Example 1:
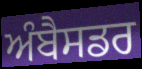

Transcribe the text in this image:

ਅੰਬੈਸਡਰ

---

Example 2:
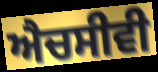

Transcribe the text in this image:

ਐਚਸੀਵੀ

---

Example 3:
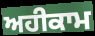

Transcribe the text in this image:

ਅਹੀਕਾਮ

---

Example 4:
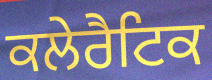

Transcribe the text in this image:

ਕਲੇਰੈਟਿਕ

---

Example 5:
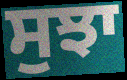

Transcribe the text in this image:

ਸੁਝਾ